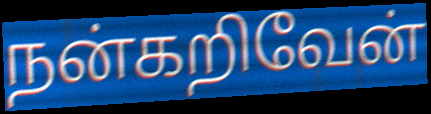
நன்கறிவேன்